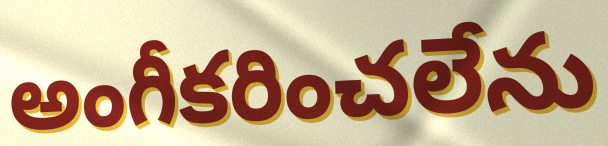
అంగీకరించలేను